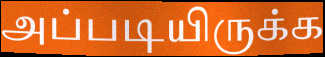
அப்படியிருக்க